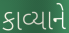
કાવ્યાને